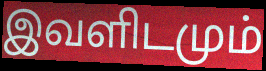
இவளிடமும்